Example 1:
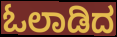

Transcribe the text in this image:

ಓಲಾಡಿದ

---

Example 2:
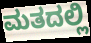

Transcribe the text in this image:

ಮತದಲ್ಲಿ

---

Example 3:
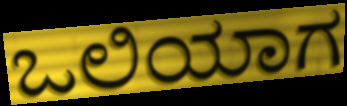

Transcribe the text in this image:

ಒಲಿಯಾಗ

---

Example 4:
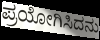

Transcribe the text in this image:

ಪ್ರಯೋಗಿಸಿದನು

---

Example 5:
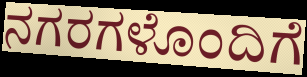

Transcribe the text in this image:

ನಗರಗಳೊಂದಿಗೆ